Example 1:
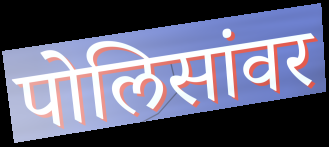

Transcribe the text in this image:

पोलिसांवर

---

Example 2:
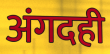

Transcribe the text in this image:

अंगदही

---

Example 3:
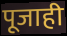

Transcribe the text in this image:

पूजाही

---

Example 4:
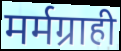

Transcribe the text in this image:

मर्मग्राही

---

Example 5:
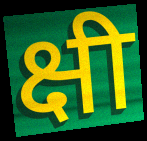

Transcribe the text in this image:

क्षी